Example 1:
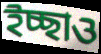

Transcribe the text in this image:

ইচ্ছাও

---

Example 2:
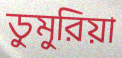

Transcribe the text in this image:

ডুমুরিয়া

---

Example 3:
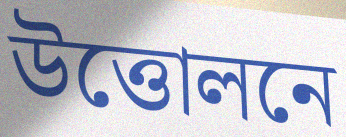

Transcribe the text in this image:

উত্তোলনে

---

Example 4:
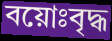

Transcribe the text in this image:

বয়োঃবৃদ্ধ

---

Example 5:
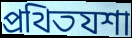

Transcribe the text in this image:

প্রথিতযশা